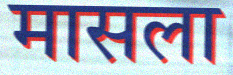
मासला